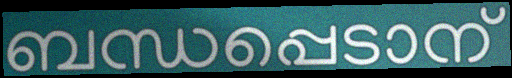
ബന്ധപ്പെടാന്